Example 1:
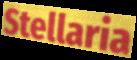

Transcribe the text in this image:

Stellaria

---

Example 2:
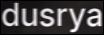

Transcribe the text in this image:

dusrya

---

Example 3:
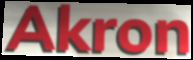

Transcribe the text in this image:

Akron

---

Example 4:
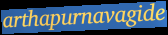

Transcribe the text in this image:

arthapurnavagide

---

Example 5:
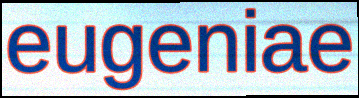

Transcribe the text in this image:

eugeniae